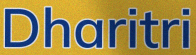
Dharitri